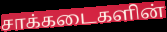
சாக்கடைகளின்